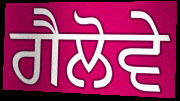
ਗੈਲੋਵੇ